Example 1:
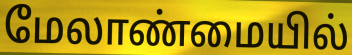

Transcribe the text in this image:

மேலாண்மையில்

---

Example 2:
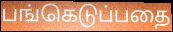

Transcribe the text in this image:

பங்கெடுப்பதை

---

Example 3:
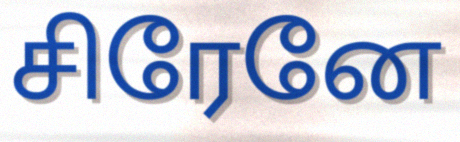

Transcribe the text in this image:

சிரேனே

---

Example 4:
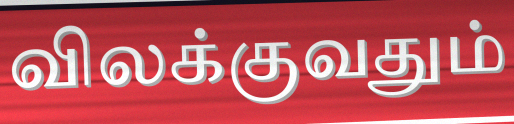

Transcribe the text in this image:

விலக்குவதும்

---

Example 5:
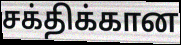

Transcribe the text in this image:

சக்திக்கான